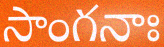
సాంగనాః